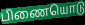
பிணையொடு